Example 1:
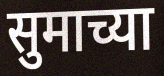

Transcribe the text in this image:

सुमाच्या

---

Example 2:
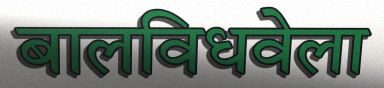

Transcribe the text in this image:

बालविधवेला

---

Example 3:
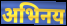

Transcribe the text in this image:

अभिनय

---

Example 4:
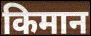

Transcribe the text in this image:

किमान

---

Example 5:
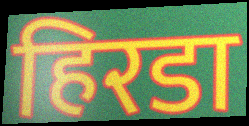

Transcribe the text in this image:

हिरडा